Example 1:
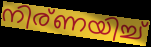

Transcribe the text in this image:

നിര്ണയിച്ച്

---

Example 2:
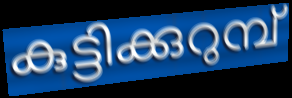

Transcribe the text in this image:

കുട്ടിക്കുറുമ്പ്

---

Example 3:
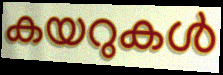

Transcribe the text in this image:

കയറുകൾ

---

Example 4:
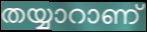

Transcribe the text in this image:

തയ്യാറാണ്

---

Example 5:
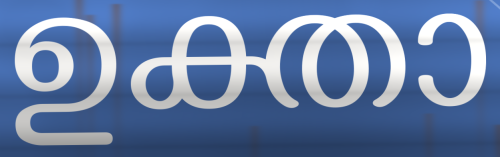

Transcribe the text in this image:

ഉക്താ